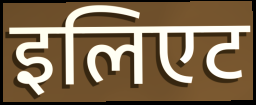
इलिएट